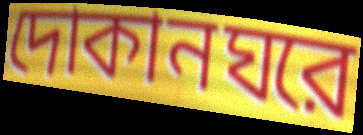
দোকানঘরে